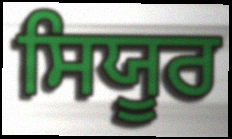
ਸਿਯੂਰ